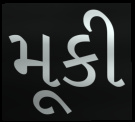
મૂકી